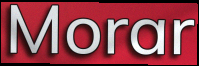
Morar